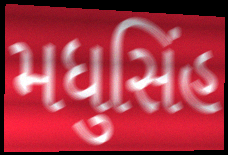
મધુસિંહ